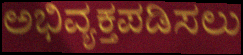
ಅಭಿವ್ಯಕ್ತಪಡಿಸಲು